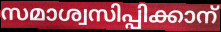
സമാശ്വസിപ്പിക്കാന്